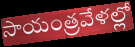
సాయంత్రవేళల్లో